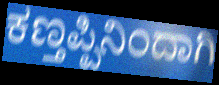
ಕಣ್ತಪ್ಪಿನಿಂದಾಗಿ